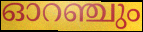
ഓറഞ്ചും